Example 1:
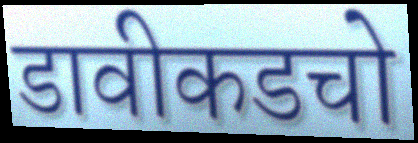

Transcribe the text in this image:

डावीकडचो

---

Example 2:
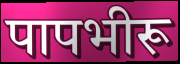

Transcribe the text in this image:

पापभीरू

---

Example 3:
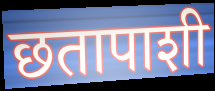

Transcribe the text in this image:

छतापाशी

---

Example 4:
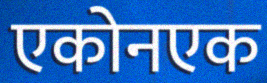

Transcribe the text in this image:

एकोनएक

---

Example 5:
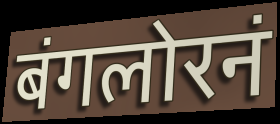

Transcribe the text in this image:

बंगलोरनं